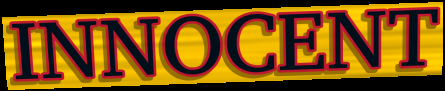
INNOCENT